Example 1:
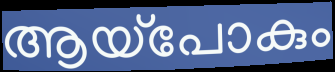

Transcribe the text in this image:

ആയ്പോകും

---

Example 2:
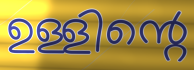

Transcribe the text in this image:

ഉള്ളിന്റെ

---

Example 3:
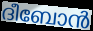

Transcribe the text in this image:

ദീബോൻ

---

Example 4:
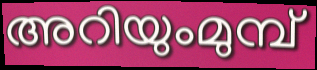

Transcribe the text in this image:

അറിയുംമുമ്പ്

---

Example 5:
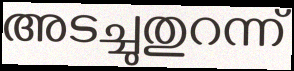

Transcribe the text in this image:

അടച്ചുതുറന്ന്